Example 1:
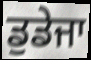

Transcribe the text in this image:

ਡੁਡੇਜਾ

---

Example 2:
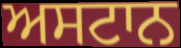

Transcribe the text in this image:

ਅਸਟਾਨ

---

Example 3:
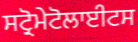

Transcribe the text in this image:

ਸਟ੍ਰੋਮੇਟੋਲਾਈਟਸ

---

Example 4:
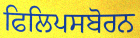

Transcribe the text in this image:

ਫਿਲਿਪਸਬੋਰਨ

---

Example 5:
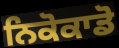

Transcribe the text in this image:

ਨਿਕੋਕਾਡੋ